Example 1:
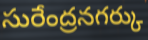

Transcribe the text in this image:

సురేంద్రనగర్కు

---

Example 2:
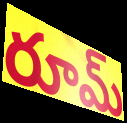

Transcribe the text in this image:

రూమ్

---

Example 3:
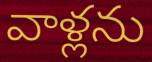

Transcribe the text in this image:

వాళ్లను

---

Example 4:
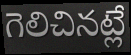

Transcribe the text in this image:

గెలిచినట్లే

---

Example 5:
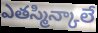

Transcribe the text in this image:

ఎతస్మిన్కాలే